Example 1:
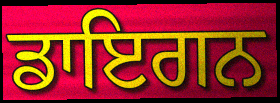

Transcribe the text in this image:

ਡਾਇਗਨ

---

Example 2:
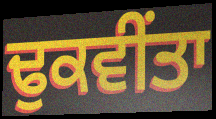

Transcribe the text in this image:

ਢੁਕਵੀਂਤਾ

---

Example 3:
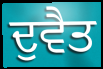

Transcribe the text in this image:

ਦੁਵੈਤ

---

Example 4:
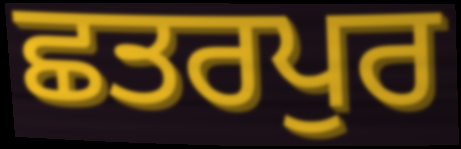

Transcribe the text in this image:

ਛਤਰਪੁਰ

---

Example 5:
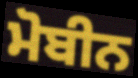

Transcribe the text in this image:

ਮੋਬੀਨ